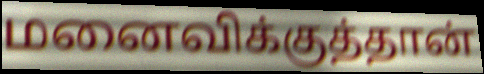
மனைவிக்குத்தான்